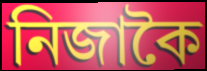
নিজাকৈ